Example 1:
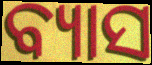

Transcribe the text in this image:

ବ୍ୟାସ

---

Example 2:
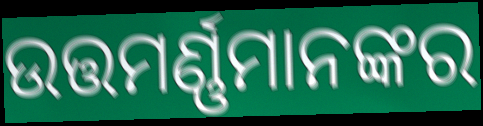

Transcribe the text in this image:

ଉତ୍ତମର୍ଣ୍ଣମାନଙ୍କର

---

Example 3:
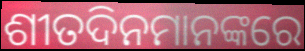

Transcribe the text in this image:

ଶୀତଦିନମାନଙ୍କରେ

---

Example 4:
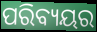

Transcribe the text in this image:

ପରିବ୍ୟୟର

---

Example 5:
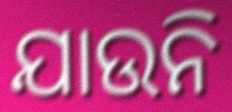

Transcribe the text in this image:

ଯାଉନି